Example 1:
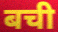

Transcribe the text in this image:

बची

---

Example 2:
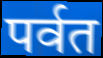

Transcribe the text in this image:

पर्वत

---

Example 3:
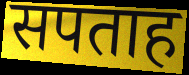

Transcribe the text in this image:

सपताह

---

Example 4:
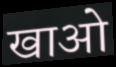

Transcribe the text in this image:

खाओ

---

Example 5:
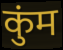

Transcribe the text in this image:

कुंम